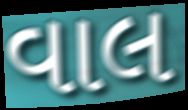
વાલ